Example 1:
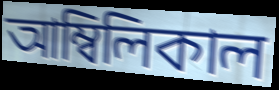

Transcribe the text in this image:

আম্বিলিকাল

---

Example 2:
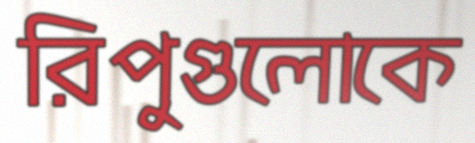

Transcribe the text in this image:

রিপুগুলোকে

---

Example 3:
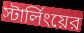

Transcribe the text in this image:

স্টার্লিংয়ের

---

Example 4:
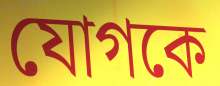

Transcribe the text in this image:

যোগকে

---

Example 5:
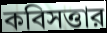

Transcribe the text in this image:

কবিসত্তার